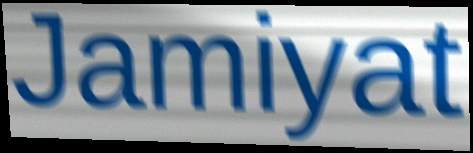
Jamiyat